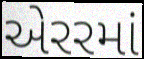
એરરમાં